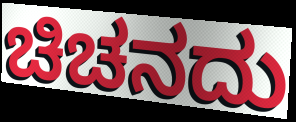
ಚಿಚನದು